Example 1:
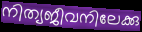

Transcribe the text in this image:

നിത്യജീവനിലേക്കു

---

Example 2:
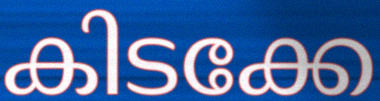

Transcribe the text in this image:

കിടക്കേ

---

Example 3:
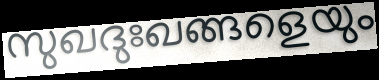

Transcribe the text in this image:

സുഖദുഃഖങ്ങളെയും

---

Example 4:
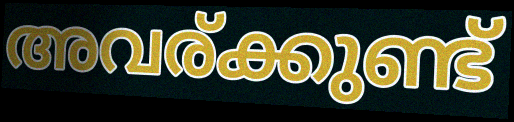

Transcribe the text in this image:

അവര്ക്കുണ്ട്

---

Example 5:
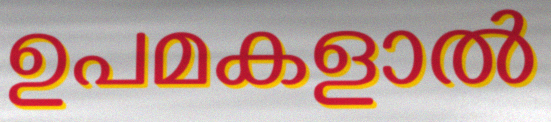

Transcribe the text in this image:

ഉപമകളാൽ